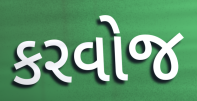
કરવોજ